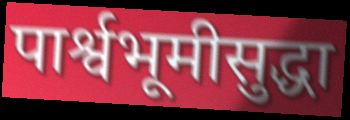
पार्श्वभूमीसुद्धा